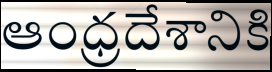
ఆంధ్రదేశానికి